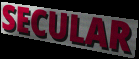
SECULAR